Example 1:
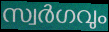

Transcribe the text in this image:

സ്വർഗവും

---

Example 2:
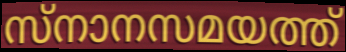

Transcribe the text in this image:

സ്നാനസമയത്ത്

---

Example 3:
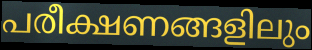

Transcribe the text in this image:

പരീക്ഷണങ്ങളിലും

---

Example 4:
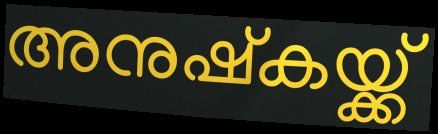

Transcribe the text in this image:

അനുഷ്കയ്ക്ക്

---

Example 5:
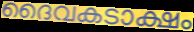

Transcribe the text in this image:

ദൈവകടാക്ഷം